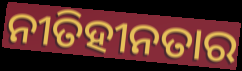
ନୀତିହୀନତାର